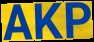
AKP